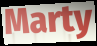
Marty